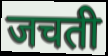
जचती